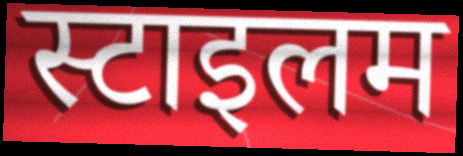
स्टाइलम